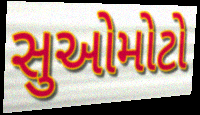
સુઓમોટો